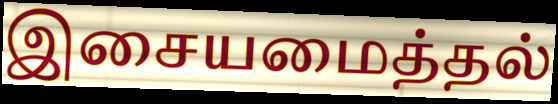
இசையமைத்தல்